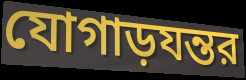
যোগাড়যন্তর